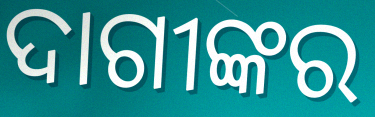
ଦାଗୀଙ୍କର